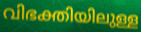
വിഭക്തിയിലുള്ള